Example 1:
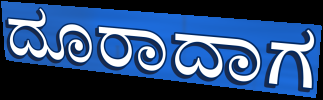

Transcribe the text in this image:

ದೂರಾದಾಗ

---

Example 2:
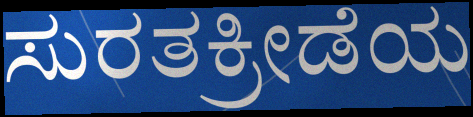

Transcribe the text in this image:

ಸುರತಕ್ರೀಡೆಯ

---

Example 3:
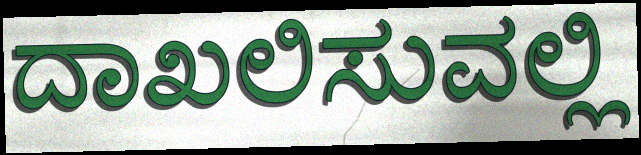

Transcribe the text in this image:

ದಾಖಲಿಸುವಲ್ಲಿ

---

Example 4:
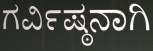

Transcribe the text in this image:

ಗರ್ವಿಷ್ಠನಾಗಿ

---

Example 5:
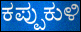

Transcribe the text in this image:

ಕಪ್ಪುಕುಳಿ